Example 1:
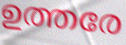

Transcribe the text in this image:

ഉത്തരേ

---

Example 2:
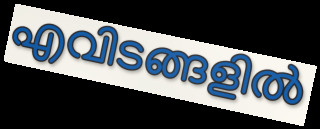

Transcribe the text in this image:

എവിടങ്ങളിൽ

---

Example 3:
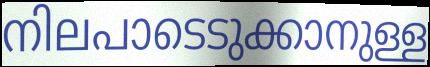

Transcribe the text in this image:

നിലപാടെടുക്കാനുള്ള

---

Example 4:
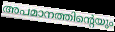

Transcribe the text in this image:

അപമാനത്തിന്റെയും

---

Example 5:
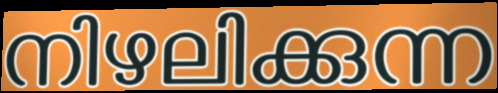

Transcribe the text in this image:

നിഴലിക്കുന്ന